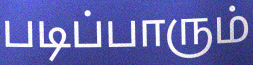
படிப்பாரும்